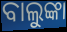
ବାଲୁଙ୍କା